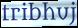
tribhuj